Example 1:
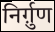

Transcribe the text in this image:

निर्ग़ुण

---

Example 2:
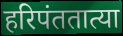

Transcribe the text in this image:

हरिपंततात्या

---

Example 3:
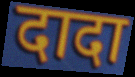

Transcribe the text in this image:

दादा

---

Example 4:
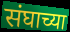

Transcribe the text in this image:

संघाच्या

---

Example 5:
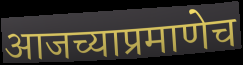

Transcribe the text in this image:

आजच्याप्रमाणेच